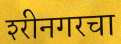
श्रीनगरचा